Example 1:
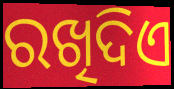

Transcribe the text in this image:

ରଖିଦିଏ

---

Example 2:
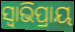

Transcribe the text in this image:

ସ୍ଵାଭିପ୍ରାୟ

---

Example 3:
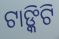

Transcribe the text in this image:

ଟାଙ୍କିଟି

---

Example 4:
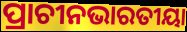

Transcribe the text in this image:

ପ୍ରାଚୀନଭାରତୀୟା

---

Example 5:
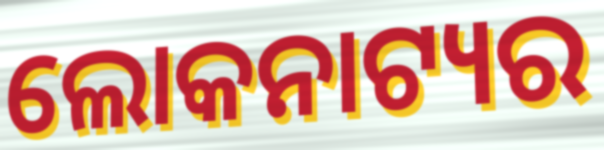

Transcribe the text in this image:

ଲୋକନାଟ୍ୟର